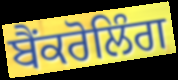
ਬੈਂਕਰੋਲਿੰਗ